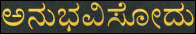
ಅನುಭವಿಸೋದು